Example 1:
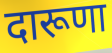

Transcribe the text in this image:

दारूणा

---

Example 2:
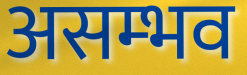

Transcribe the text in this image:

असम्‍भव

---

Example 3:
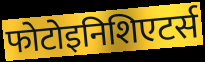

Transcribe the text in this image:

फोटोइनिशिएटर्स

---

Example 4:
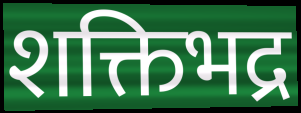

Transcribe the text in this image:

शक्तिभद्र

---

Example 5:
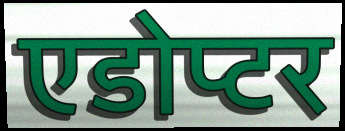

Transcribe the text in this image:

एडोप्टर